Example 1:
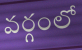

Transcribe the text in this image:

వర్గంలో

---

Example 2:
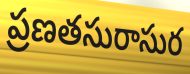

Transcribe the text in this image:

ప్రణతసురాసుర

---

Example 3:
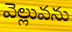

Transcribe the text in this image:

వెల్లువను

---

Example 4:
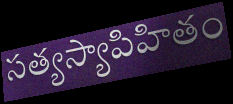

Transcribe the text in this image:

సత్యస్యాపిహితం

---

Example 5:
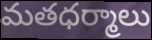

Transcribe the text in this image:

మతధర్మాలు